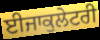
ਈਜਾਕੁਲੇਟਰੀ